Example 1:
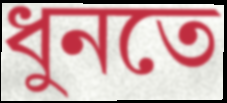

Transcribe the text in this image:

ধুনতে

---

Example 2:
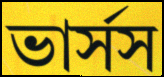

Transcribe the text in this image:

ভার্সস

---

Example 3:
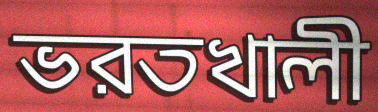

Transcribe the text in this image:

ভরতখালী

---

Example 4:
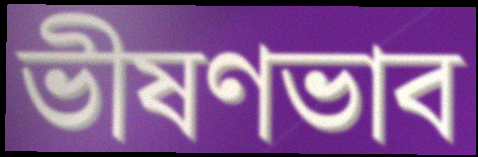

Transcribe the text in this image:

ভীষণভাব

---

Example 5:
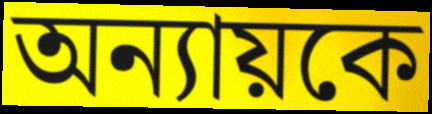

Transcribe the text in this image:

অন্যায়কে